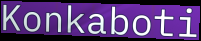
Konkaboti